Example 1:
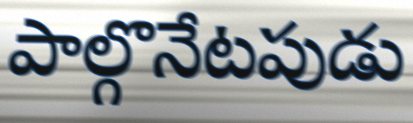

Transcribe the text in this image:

పాల్గొనేటపుడు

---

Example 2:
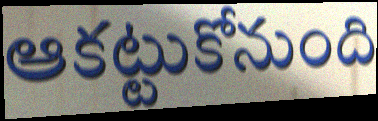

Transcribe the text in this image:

ఆకట్టుకోనుంది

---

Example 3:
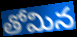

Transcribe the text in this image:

తోమిన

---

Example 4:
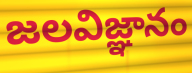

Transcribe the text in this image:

జలవిజ్ఞానం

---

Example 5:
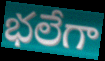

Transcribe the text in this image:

భలేగా